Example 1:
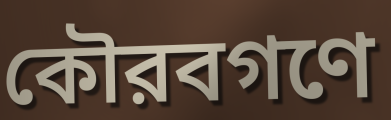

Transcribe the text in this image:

কৌরবগণে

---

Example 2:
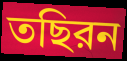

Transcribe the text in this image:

তছিরন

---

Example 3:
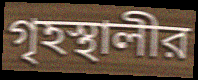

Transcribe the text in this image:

গৃহস্থালীর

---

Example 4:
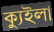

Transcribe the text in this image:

ক্যুইলা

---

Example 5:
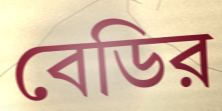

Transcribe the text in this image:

বেডির